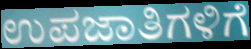
ಉಪಜಾತಿಗಳಿಗೆ